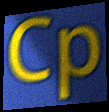
Cp